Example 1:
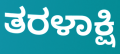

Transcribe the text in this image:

ತರಳಾಕ್ಷಿ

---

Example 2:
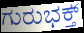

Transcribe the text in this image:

ಗುರುಭಕ್ತ್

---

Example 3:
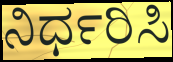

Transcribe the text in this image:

ನಿರ್ಧರಿಸಿ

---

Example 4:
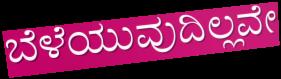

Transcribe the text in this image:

ಬೆಳೆಯುವುದಿಲ್ಲವೇ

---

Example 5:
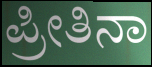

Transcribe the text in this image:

ಪ್ರೀತಿನಾ